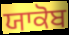
ਯਾਕੋਬ